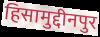
हिसामुद्दीनपुर